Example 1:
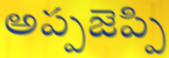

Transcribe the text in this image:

అప్పజెప్పి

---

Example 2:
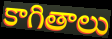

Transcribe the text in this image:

కాగితాలు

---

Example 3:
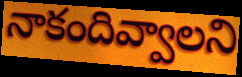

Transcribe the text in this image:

నాకందివ్వాలని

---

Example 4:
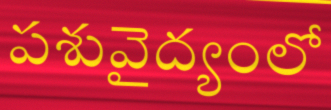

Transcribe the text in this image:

పశువైద్యంలో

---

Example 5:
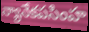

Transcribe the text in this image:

న్యానేకపసింహ